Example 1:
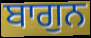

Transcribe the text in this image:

ਬਾਗੁਨ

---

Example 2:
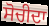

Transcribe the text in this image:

ਸੋਚੀਦਾ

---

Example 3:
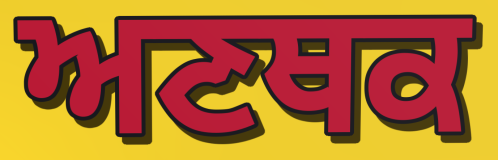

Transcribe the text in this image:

ਅਣਥਕ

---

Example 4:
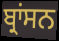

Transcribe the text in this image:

ਬ੍ਰਾਂਸਨ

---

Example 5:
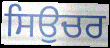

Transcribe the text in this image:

ਸਿਉਚਰ